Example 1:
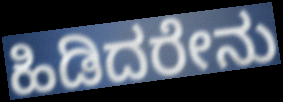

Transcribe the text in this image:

ಹಿಡಿದರೇನು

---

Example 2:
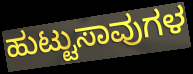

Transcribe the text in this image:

ಹುಟ್ಟುಸಾವುಗಳ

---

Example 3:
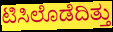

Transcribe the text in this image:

ಟಿಸಿಲೊಡೆದಿತ್ತು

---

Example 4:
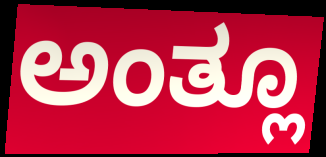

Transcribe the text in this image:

ಅಂತ್ಲೂ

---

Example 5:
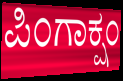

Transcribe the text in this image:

ಪಿಂಗಾಕ್ಷಂ